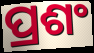
ପ୍ରଶଂ